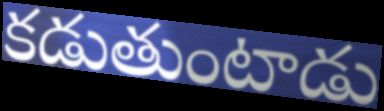
కడుతుంటాడు